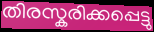
തിരസ്കരിക്കപ്പെട്ടു